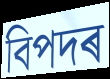
বিপদৰ